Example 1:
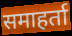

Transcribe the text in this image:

समाहर्ता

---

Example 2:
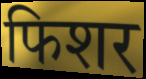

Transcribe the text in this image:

फिशर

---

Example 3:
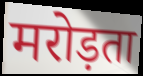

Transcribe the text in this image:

मरोड़ता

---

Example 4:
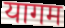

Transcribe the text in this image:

यागम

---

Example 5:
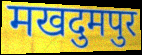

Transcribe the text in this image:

मखदुमपुर